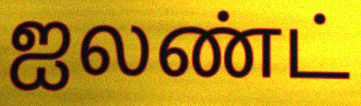
ஐலண்ட்